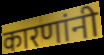
कारणांनी